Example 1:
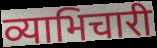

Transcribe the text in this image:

व्याभिचारी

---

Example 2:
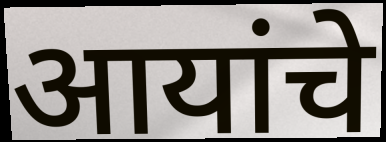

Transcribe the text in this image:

आयांचे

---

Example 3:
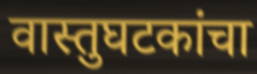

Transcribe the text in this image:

वास्तुघटकांचा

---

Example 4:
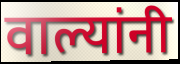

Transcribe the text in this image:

वाल्यांनी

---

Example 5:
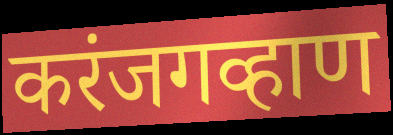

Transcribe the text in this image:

करंजगव्हाण